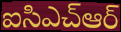
ఐసిఎచ్ఆర్